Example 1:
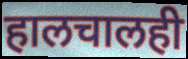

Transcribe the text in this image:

हालचालही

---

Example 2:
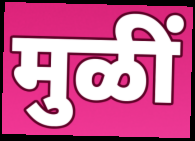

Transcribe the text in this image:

मुळीं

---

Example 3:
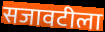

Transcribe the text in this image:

सजावटीला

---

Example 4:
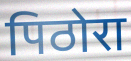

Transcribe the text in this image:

पिठोरा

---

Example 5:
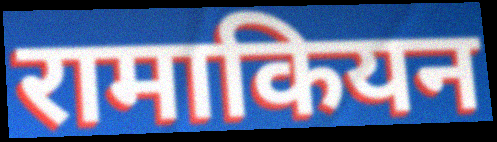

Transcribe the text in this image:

रामाकियन